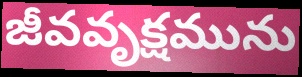
జీవవృక్షమును